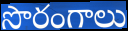
సొరంగాలు